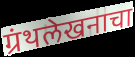
ग्रंथलेखनाचा